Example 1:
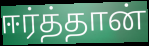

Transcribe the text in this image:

ஈர்த்தான்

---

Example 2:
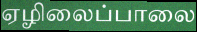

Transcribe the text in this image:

ஏழிலைப்பாலை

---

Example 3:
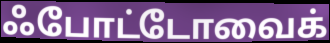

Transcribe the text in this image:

ஃபோட்டோவைக்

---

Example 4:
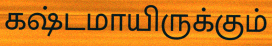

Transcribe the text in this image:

கஷ்டமாயிருக்கும்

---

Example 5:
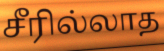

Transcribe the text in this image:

சீரில்லாத